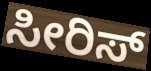
ಸೀರಿಸ್